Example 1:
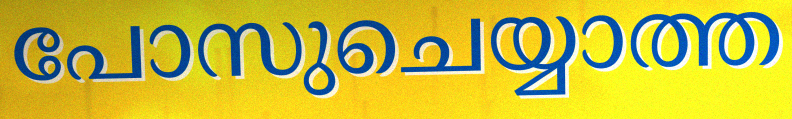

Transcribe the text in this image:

പോസുചെയ്യാത്ത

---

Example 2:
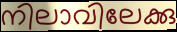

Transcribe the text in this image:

നിലാവിലേക്കു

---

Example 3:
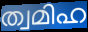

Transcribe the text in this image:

ത്വമിഹ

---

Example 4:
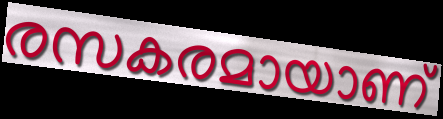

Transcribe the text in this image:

രസകരമായാണ്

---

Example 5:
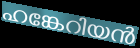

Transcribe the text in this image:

ഹങ്കേറിയൻ